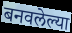
बनवलेल्या